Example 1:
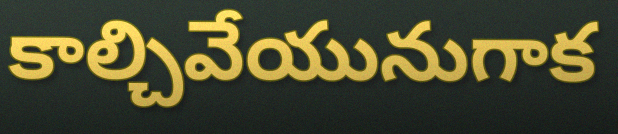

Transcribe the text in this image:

కాల్చివేయునుగాక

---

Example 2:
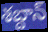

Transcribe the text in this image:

శబ్దాన్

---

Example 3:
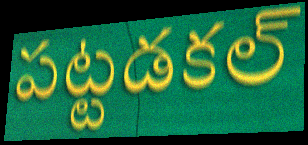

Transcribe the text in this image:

పట్టడకల్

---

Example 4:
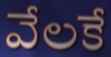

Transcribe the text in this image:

వేలకే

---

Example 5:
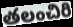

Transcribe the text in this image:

తలంచిరి